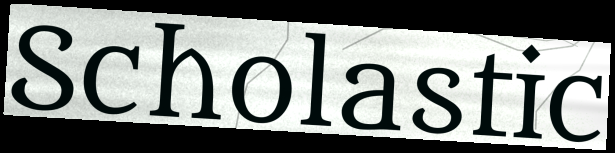
Scholastic